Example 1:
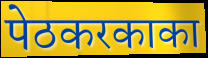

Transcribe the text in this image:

पेठकरकाका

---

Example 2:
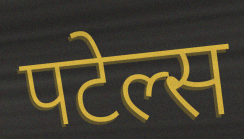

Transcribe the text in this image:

पटेल्स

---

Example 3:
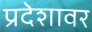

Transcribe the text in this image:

प्रदेशावर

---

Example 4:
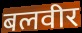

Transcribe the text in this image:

बलवीर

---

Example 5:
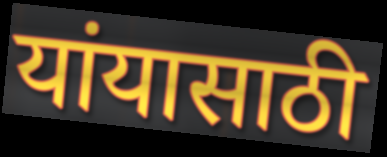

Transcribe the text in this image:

यांयासाठी